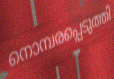
നൊമ്പരപ്പെടുത്തി